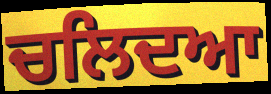
ਚਲਿਦਆ